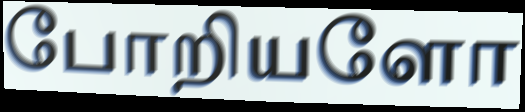
போறியளோ